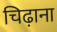
चिढ़ाना